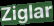
Ziglar